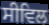
ਸੀਵਿਲ